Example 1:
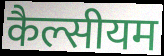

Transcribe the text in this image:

कैल्सीयम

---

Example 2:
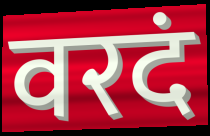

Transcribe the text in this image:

वरदं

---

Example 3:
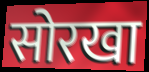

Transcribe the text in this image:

सोरखा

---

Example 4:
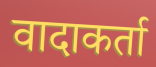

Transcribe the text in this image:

वादाकर्ता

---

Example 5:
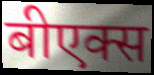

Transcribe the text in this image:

बीएक्स